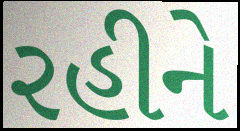
રહીને